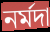
নৰ্মদা